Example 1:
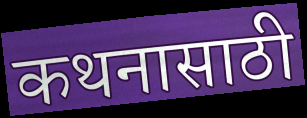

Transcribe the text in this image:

कथनासाठी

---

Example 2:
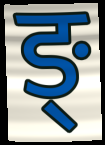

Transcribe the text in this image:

ङ्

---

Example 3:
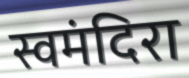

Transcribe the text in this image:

स्वमंदिरा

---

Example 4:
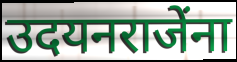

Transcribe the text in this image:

उदयनराजेंना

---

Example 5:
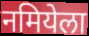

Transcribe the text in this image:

नमियेला